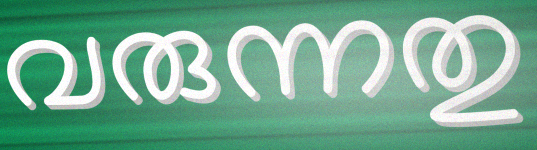
വരുന്നതു